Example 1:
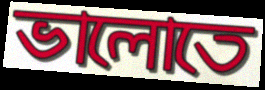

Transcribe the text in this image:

ভালোতে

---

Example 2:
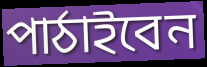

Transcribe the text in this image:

পাঠাইবেন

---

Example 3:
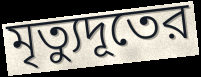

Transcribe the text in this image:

মৃত্যুদূতের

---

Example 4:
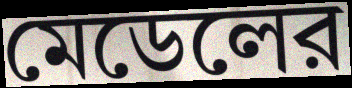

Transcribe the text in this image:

মেডেলের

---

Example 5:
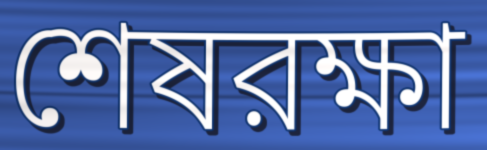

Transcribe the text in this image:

শেষরক্ষা